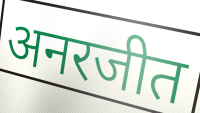
अनरजीत